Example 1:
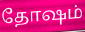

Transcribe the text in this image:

தோஷம்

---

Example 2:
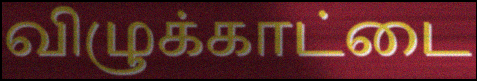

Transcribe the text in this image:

விழுக்காட்டை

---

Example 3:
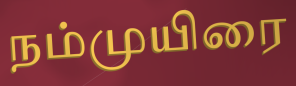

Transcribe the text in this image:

நம்முயிரை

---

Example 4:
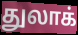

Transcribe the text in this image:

துலாக்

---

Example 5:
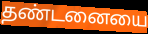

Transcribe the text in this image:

தண்டனையை